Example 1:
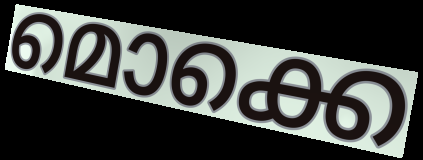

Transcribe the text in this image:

മൊക്കെ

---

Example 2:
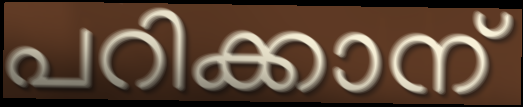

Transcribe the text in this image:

പറിക്കാന്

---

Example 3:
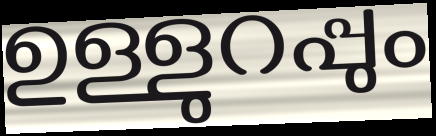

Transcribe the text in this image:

ഉള്ളുറപ്പും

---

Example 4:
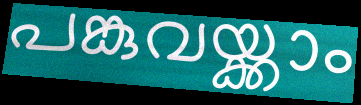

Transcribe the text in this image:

പങ്കുവയ്ക്കാം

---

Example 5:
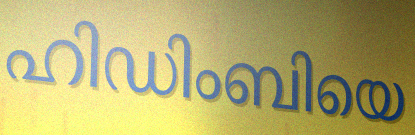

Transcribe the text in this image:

ഹിഡിംബിയെ